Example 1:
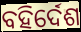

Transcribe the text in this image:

ବହିର୍ଦେଶ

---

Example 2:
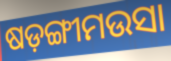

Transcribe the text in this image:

ଷଡ଼ଙ୍ଗୀମଉସା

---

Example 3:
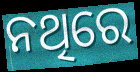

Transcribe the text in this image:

ନଥିରେ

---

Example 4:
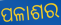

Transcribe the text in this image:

ପଳାଶର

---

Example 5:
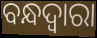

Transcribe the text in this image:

ବନ୍ଧଦ୍ବାରା